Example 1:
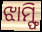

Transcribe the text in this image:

ଝାମ୍ଫି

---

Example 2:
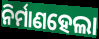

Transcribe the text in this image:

ନିର୍ମାଣହେଲା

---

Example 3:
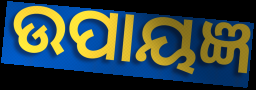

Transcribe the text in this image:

ଉପାୟଜ୍ଞ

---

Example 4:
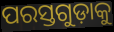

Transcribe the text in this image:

ପରସ୍ତଗୁଡ଼ାକୁ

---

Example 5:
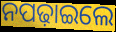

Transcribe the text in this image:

ନପଢ଼ାଇଲେ